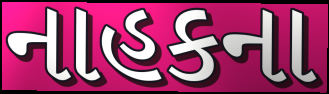
નાહકના